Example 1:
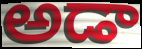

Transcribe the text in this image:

అడా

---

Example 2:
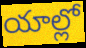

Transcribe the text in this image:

యాల్లో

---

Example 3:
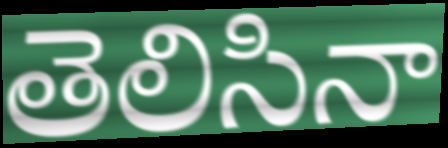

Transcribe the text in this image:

తెలిసినా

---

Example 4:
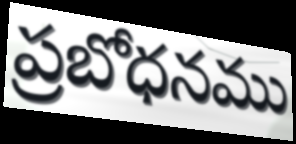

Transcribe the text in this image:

ప్రబోధనము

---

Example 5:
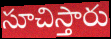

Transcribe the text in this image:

సూచిస్తారు